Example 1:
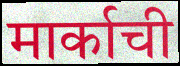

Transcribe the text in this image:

मार्काची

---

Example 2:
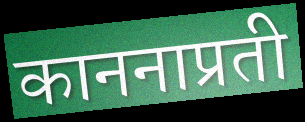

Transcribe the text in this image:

काननाप्रती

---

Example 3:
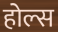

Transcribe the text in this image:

होल्स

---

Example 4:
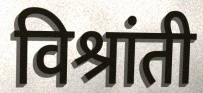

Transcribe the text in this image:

विश्रांती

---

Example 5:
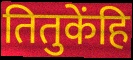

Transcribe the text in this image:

तितुकेंहि